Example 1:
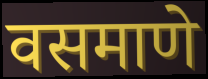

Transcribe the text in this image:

वसमाणे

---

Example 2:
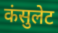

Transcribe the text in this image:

कंसुलेट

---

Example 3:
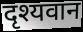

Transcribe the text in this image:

दृश्यवान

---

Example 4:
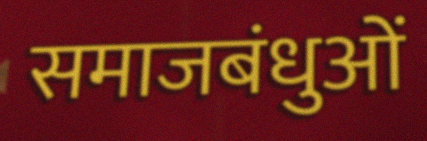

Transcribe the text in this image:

समाजबंधुओं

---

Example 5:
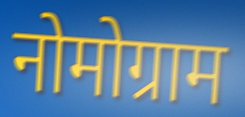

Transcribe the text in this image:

नोमोग्राम